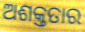
ଅଶକ୍ତତାର